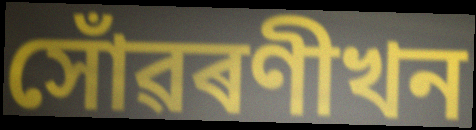
সোঁৱৰণীখন